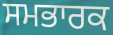
ਸਮਭਾਰਕ